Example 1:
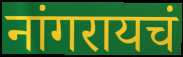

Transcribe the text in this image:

नांगरायचं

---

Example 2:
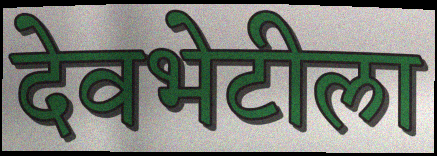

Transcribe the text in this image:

देवभेटीला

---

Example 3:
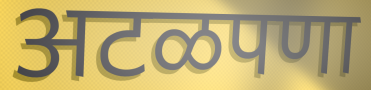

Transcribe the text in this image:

अटळपणा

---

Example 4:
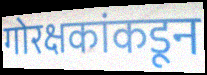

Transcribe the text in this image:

गोरक्षकांकडून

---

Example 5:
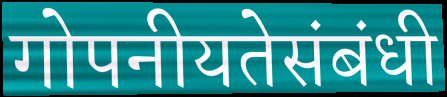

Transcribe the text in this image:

गोपनीयतेसंबंधी